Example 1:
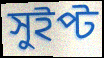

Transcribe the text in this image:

সুইপ্ট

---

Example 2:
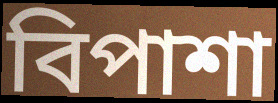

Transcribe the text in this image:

বিপাশা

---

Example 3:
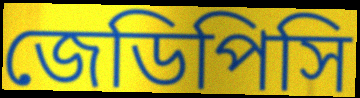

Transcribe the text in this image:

জেডিপিসি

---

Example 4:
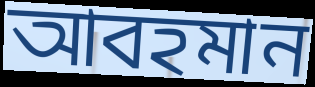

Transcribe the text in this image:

আবহমান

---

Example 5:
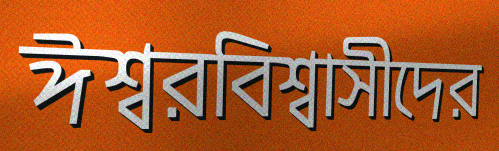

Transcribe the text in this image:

ঈশ্বরবিশ্বাসীদের